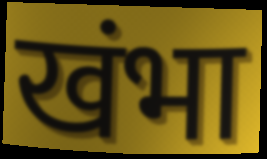
खंभा